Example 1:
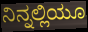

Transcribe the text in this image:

ನಿನ್ನಲ್ಲಿಯೂ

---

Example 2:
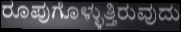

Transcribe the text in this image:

ರೂಪುಗೊಳ್ಳುತ್ತಿರುವುದು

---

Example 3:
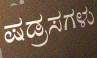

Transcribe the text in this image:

ಷಡ್ರಸಗಳು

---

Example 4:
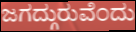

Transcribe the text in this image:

ಜಗದ್ಗುರುವೆಂದು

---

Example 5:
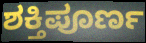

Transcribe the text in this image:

ಶಕ್ತಿಪೂರ್ಣ